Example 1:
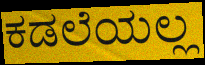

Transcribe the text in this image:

ಕಡಲೆಯಲ್ಲ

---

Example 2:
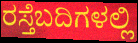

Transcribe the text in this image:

ರಸ್ತೆಬದಿಗಳಲ್ಲಿ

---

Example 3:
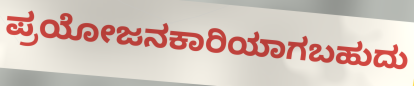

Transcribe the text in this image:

ಪ್ರಯೋಜನಕಾರಿಯಾಗಬಹುದು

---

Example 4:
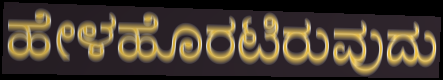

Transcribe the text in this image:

ಹೇಳಹೊರಟಿರುವುದು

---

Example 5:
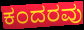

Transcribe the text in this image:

ಕಂದರವು